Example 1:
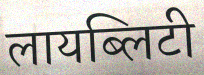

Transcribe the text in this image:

लायब्लिटी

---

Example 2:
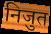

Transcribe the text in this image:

निजुत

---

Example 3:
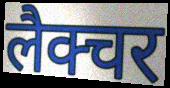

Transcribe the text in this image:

लैक्चर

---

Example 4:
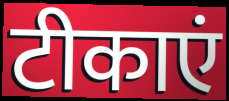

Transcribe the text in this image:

टीकाएं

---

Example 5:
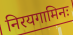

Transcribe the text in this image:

निरयगामिनः